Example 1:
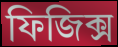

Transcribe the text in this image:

ফিজিক্স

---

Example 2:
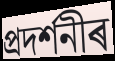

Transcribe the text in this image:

প্ৰদৰ্শনীৰ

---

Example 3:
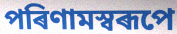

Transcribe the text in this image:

পৰিণামস্বৰূপে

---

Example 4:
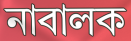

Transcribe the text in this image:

নাবালক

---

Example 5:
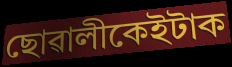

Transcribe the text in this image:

ছোৱালীকেইটাক